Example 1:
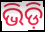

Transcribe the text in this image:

ଭିଡ଼ି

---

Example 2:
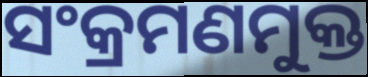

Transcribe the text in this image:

ସଂକ୍ରମଣମୁକ୍ତ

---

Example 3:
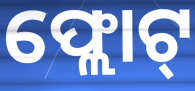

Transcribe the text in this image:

ଫ୍ଲୋଟ୍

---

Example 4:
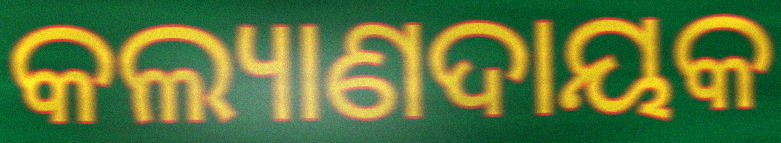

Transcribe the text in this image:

କଲ୍ୟାଣଦାୟକ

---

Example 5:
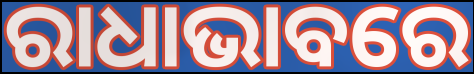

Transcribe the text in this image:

ରାଧାଭାବରେ